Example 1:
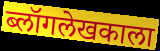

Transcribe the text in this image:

ब्लॉगलेखकाला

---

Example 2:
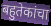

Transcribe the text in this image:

बहुतेकांचा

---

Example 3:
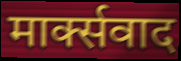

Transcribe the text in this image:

मार्क्‍सवाद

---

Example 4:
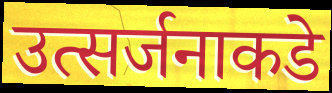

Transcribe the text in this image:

उत्सर्जनाकडे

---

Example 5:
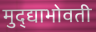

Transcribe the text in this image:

मुद्द्याभोवती